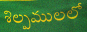
శిల్పములలో